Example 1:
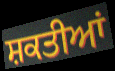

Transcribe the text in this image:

ਸ਼ਕਤੀਆਂ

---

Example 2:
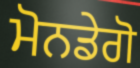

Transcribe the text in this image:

ਮੋਨਡੇਗੋ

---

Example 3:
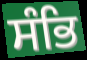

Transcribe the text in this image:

ਸੰਭਿ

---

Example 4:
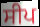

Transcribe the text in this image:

ਸੀਪ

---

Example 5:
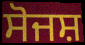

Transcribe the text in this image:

ਸੋਜਸ਼